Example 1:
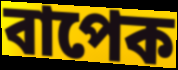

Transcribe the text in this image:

বাপেক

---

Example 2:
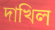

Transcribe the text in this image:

দাখিল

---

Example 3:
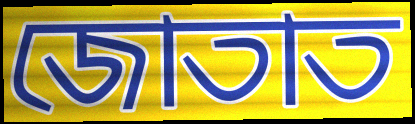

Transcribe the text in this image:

জোতাত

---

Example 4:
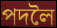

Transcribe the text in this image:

পদলৈ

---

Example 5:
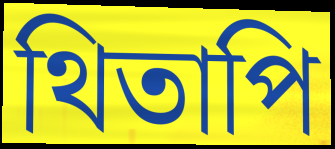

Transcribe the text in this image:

থিতাপি